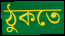
ঠুকতে